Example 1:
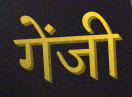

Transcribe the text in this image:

गेंजी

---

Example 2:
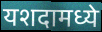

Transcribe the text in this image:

यशदामध्ये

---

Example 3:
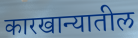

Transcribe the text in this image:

कारखान्यातील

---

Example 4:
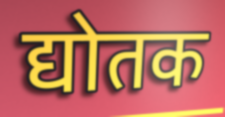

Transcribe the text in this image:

द्योतक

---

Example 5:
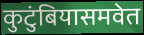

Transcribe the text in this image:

कुटुंबियासमवेत